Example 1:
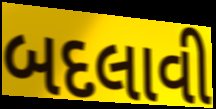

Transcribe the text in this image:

બદલાવી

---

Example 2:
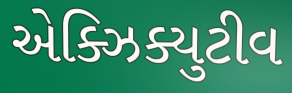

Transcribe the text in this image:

એક્ઝિક્યુટીવ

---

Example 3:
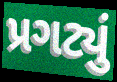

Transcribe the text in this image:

પ્રગટ્યું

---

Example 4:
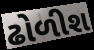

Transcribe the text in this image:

ઢોળીશ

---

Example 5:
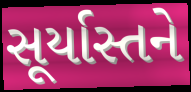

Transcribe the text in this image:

સૂર્યાસ્તને